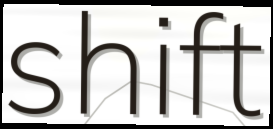
shift